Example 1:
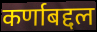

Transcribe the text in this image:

कर्णाबद्दल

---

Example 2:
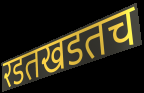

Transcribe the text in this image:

रडतखडतच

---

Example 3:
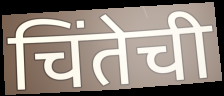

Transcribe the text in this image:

चिंतेची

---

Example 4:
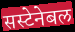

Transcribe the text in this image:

सस्टेनेबल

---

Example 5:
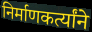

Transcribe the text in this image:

निर्माणकर्त्यांने